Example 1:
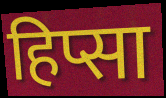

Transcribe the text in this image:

हिप्सा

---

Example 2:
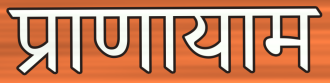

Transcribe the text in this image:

प्राणायाम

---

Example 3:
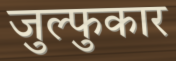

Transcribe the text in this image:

जुल्फुकार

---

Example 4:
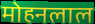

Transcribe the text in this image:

मोहनलाल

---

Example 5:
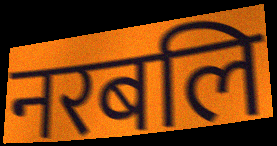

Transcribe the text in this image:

नरबलि